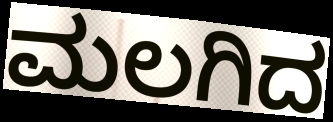
ಮಲಗಿದ